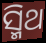
ସ୍ମିଥ